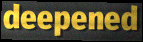
deepened